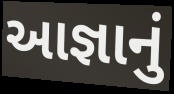
આજ્ઞાનું